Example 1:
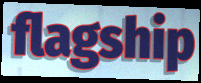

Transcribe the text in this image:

flagship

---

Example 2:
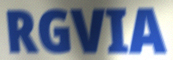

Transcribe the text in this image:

RGVIA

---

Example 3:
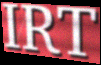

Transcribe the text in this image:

IRT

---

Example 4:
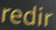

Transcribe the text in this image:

redir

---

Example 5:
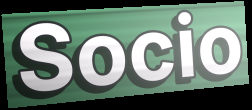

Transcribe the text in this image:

Socio